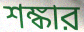
শঙ্কার